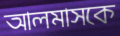
আলমাসকে